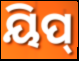
ୟିପ୍